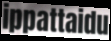
ippattaidu